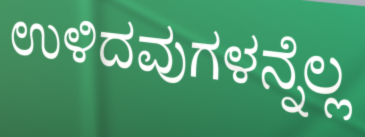
ಉಳಿದವುಗಳನ್ನೆಲ್ಲ